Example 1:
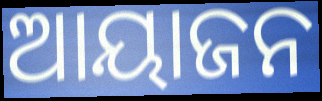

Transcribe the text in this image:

ଆୟାଜନ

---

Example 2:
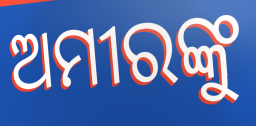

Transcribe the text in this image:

ଅମୀରଙ୍କୁ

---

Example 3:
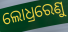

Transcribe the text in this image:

ଲୋଧ୍ରରେଣୁ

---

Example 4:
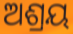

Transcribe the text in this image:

ଅଶ୍ରୟ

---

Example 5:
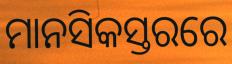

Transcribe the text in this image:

ମାନସିକସ୍ତରରେ